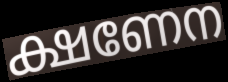
ക്ഷണേന